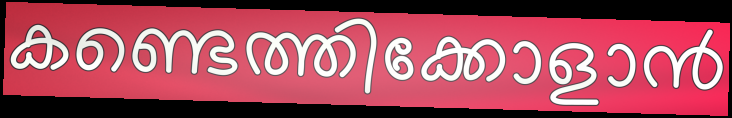
കണ്ടെത്തിക്കോളാൻ